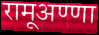
रामूअण्णा